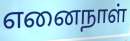
எனைநாள்